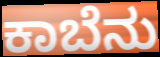
ಕಾಬೆನು